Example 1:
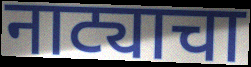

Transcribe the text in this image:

नाट्याचा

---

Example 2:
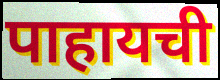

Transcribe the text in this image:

पाहायची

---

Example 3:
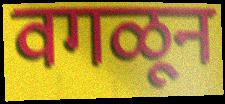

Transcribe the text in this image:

वगळून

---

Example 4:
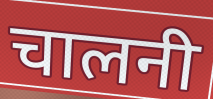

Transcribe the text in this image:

चालनी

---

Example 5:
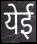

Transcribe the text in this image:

येई